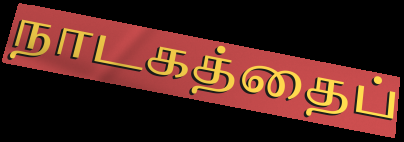
நாடகத்தைப்